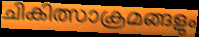
ചികിത്സാക്രമങ്ങളും